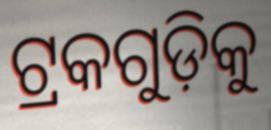
ଟ୍ରକଗୁଡ଼ିକୁ